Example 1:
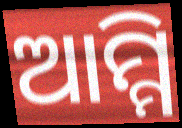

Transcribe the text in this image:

ଆମ୍ମି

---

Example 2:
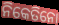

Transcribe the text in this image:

ନିକେତିନୋ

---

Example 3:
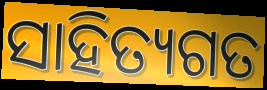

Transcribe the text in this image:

ସାହିତ୍ୟଗତ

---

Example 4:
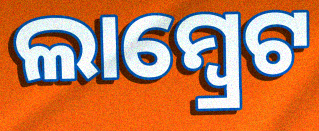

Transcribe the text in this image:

ଲାମ୍ୱ୍ରେଟ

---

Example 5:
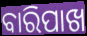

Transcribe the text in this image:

ବାରିପାଖ